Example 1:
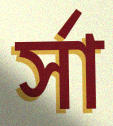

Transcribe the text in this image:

র্সা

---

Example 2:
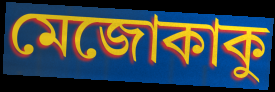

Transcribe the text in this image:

মেজোকাকু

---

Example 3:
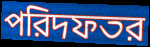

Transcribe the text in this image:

পরিদফতর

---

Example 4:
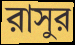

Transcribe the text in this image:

রাসুর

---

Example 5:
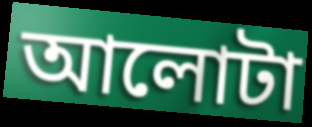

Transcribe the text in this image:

আলোটা